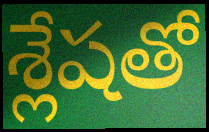
శ్లేషతో